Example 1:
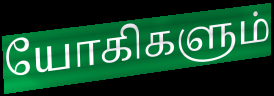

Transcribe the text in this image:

யோகிகளும்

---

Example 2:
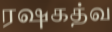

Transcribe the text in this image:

ரஷகத்வ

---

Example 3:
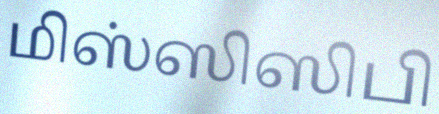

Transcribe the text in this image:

மிஸ்ஸிஸிபி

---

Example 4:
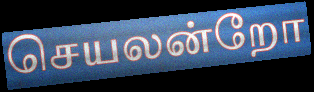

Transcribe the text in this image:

செயலன்றோ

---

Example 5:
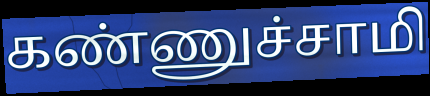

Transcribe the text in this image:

கண்ணுச்சாமி